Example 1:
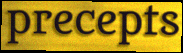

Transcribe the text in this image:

precepts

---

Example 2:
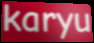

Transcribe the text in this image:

karyu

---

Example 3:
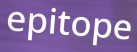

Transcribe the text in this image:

epitope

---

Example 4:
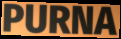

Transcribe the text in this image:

PURNA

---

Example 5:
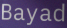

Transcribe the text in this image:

Bayad